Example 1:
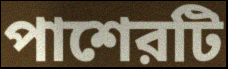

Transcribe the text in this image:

পাশেরটি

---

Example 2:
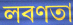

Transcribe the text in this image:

লবণতা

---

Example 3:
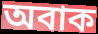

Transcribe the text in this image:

অবাক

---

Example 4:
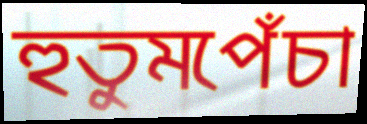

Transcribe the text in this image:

হুতুমপেঁচা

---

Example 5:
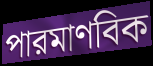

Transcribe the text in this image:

পারমাণবিক